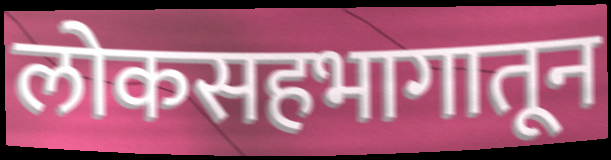
लोकसहभागातून